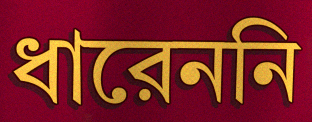
ধারেননি